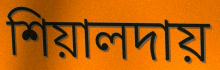
শিয়ালদায়